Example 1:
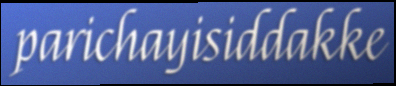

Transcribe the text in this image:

parichayisiddakke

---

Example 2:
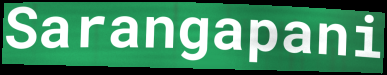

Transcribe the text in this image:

Sarangapani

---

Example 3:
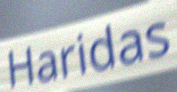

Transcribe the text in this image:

Haridas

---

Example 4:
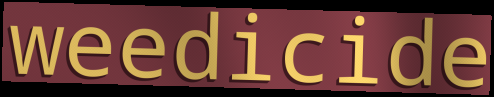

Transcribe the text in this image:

weedicide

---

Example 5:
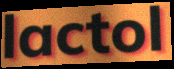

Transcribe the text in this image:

lactol